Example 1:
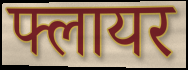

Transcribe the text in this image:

फ्लायर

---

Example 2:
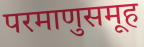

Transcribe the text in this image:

परमाणुसमूह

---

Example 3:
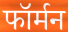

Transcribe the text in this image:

फॉर्मन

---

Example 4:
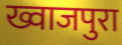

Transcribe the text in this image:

ख्वाजपुरा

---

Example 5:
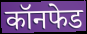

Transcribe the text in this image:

कॉनफेड